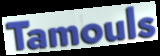
Tamouls